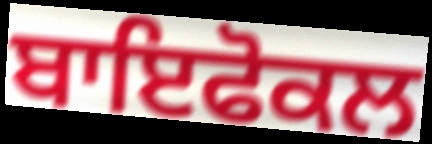
ਬਾਇਫੋਕਲ